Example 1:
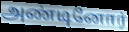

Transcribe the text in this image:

அண்டினோர்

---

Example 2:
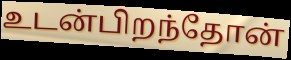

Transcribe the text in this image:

உடன்பிறந்தோன்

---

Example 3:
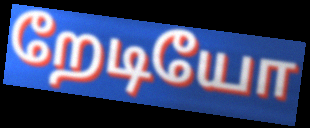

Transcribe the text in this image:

றேடியோ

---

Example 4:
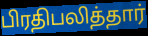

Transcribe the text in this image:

பிரதிபலித்தார்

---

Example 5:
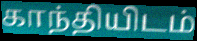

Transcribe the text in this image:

காந்தியிடம்